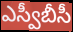
ఎస్వీబీసీ